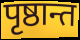
पृष्ठान्त